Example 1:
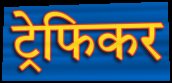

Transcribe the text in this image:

ट्रेफिकर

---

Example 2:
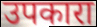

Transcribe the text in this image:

उपकारा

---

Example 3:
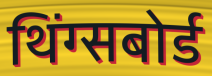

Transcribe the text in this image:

थिंग्सबोर्ड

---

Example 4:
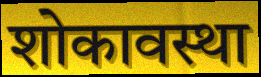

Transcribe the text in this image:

शोकावस्था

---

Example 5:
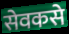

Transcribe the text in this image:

सेवकसे